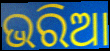
ଭରିଆ